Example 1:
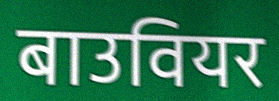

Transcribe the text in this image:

बाउवियर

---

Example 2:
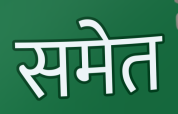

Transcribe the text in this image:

समेत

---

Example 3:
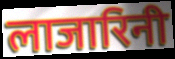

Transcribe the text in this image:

लाजारिनी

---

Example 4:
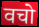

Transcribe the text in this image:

वचो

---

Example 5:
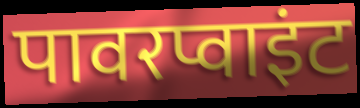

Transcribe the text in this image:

पावरप्वाइंट